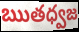
ఋతధ్వజ